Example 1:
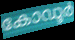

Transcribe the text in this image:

കോഡൂർ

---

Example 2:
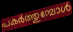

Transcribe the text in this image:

പകർത്തുമ്പോൾ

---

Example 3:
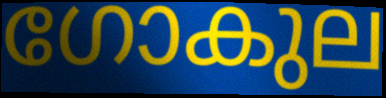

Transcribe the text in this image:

ഗോകുല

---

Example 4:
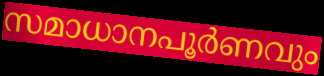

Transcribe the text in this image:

സമാധാനപൂർണവും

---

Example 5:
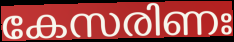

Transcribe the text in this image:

കേസരിണഃ